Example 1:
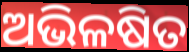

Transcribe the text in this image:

ଅଭିଳଷିତ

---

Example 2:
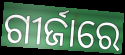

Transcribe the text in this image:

ଗୀର୍ଜାରେ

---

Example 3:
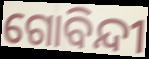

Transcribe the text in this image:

ଗୋବିନ୍ଦୀ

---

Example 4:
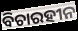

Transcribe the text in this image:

ବିଚାରହୀନ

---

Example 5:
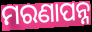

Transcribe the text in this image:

ମରଣାପନ୍ନ